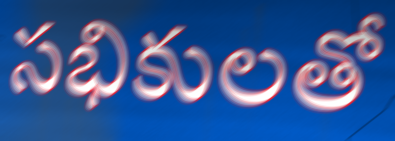
సభికులతో